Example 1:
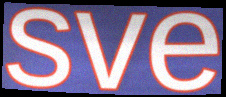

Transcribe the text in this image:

sve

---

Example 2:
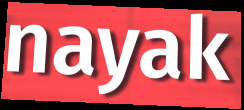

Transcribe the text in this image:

nayak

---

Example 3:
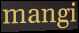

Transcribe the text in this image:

mangi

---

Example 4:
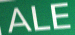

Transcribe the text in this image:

ALE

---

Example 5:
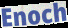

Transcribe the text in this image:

Enoch